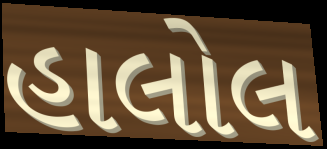
હાલોલ